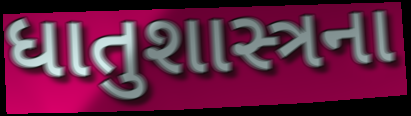
ધાતુશાસ્ત્રના